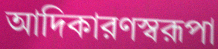
আদিকারণস্বরূপা